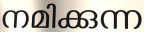
നമിക്കുന്ന